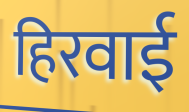
हिरवाई